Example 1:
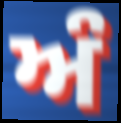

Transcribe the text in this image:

ਅੰ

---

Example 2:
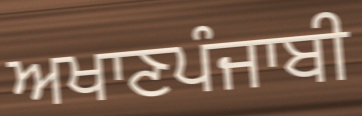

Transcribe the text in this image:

ਅਖਾਣਪੰਜਾਬੀ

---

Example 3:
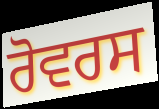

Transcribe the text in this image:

ਰੋਵਰਸ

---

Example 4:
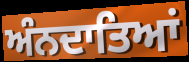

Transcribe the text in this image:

ਅੰਨਦਾਤਿਆਂ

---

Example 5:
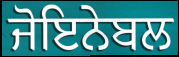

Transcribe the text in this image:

ਜੋਇਨੇਬਲ